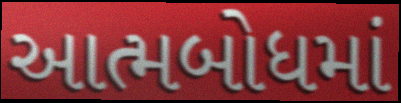
આત્મબોધમાં